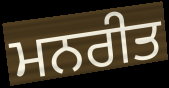
ਮਨਰੀਤ